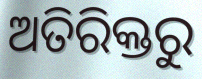
ଅତିରିକ୍ତରୁ